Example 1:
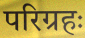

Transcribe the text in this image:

परिग्रहः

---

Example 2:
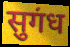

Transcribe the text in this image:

सुगंध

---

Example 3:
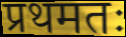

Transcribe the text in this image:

प्रथमतः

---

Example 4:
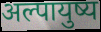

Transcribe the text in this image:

अल्पायुष्य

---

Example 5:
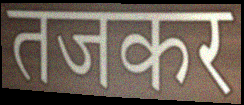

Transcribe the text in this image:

तजकर